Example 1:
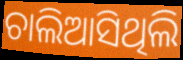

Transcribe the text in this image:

ଚାଲିଆସିଥିଲି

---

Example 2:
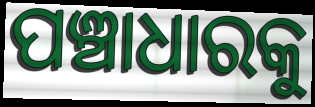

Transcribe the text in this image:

ପଞ୍ଚାଧାରକୁ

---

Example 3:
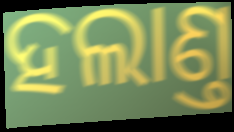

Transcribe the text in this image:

ହଲାଣ୍ତ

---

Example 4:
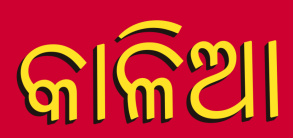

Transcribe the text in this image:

କାଳିଆ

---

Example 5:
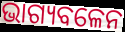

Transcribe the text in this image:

ଭାଗ୍ୟବଳେନ